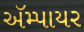
ઍમ્પાયર